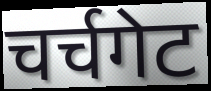
चर्चगेट